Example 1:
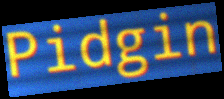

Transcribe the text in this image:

Pidgin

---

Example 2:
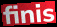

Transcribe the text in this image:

finis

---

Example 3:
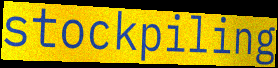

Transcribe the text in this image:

stockpiling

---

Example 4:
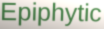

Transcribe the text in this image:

Epiphytic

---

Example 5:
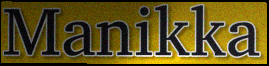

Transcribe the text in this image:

Manikka